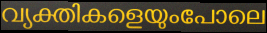
വ്യക്തികളെയുംപോലെ